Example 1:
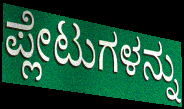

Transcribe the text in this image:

ಪ್ಲೇಟುಗಳನ್ನು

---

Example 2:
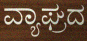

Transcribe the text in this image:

ವ್ಯಾಘ್ರದ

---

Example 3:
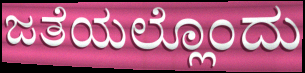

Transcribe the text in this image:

ಜತೆಯಲ್ಲೊಂದು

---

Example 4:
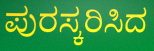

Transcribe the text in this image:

ಪುರಸ್ಕರಿಸಿದ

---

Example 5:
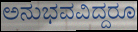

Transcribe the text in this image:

ಅನುಭವವಿದ್ದರೂ